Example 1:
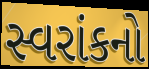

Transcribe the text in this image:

સ્વરાંકનો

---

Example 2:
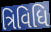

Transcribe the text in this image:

ત્રિવિધિ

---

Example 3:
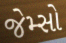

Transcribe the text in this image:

જેમ્સો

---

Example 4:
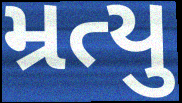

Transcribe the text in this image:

મ્રત્યુ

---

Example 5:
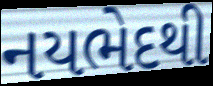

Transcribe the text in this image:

નયભેદથી